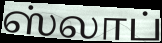
ஸ்லாப்